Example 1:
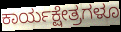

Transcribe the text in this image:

ಕಾರ್ಯಕ್ಷೇತ್ರಗಳೂ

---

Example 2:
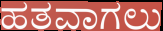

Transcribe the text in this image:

ಹತವಾಗಲು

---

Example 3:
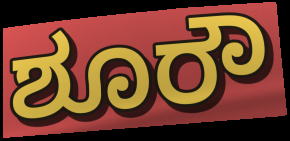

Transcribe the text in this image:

ಶೂರೌ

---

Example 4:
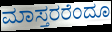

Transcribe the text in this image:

ಮಾಸ್ತರರೆಂದೂ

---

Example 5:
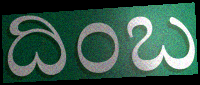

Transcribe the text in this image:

ದಿಂಬ